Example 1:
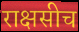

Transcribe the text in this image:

राक्षसीच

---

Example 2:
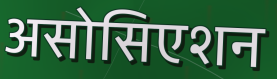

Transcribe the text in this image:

असोसिएशन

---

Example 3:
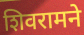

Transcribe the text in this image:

शिवरामने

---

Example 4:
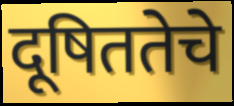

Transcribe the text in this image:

दूषिततेचे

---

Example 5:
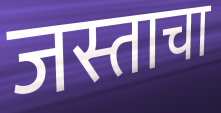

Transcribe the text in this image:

जस्ताचा